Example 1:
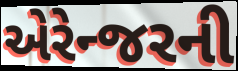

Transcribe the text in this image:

એરેન્જરની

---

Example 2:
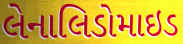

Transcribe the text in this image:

લેનાલિડોમાઇડ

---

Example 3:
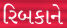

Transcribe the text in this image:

રિબકાને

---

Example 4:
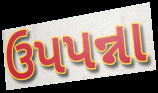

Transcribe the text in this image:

ઉપપન્ના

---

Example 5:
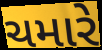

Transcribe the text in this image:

ચમારે